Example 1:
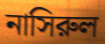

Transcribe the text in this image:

নাসিরুল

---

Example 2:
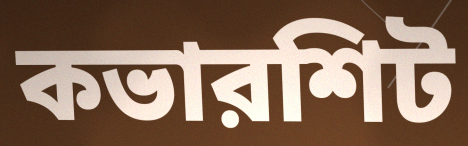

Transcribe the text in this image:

কভারশিট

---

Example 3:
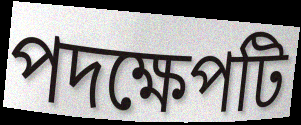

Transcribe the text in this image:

পদক্ষেপটি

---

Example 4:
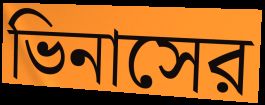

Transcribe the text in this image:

ভিনাসের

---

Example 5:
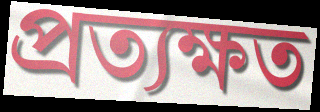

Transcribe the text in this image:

প্রত্যক্ষত